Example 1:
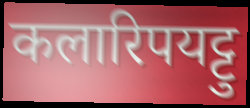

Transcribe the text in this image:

कलारिपयट्टु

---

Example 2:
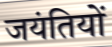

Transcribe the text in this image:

जयंतियों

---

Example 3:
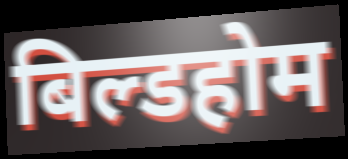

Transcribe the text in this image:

बिल्डहोम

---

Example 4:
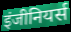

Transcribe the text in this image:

इंजीनियर्स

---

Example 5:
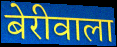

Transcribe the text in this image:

बेरीवाला